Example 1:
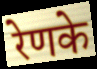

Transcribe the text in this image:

रेणके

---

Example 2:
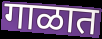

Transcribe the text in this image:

गाळात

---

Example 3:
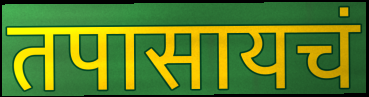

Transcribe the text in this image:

तपासायचं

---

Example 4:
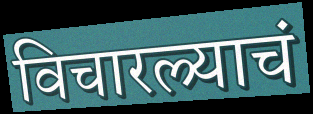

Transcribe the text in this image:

विचारल्याचं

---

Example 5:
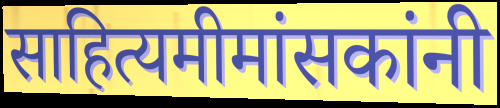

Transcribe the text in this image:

साहित्यमीमांसकांनी